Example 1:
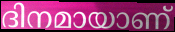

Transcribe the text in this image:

ദിനമായാണ്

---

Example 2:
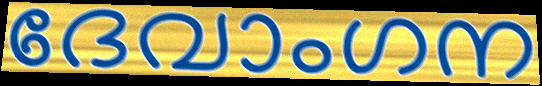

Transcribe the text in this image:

ദേവാംഗന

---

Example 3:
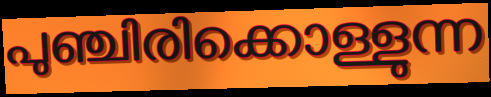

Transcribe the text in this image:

പുഞ്ചിരിക്കൊള്ളുന്ന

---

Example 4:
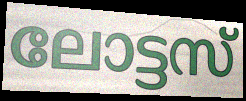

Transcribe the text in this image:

ലോട്ടസ്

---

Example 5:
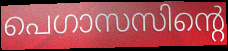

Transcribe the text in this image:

പെഗാസസിന്റെ